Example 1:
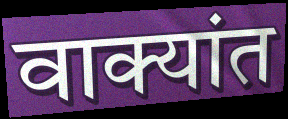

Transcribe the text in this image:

वाक्यांत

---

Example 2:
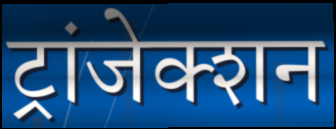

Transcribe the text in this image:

ट्रांजेक्शन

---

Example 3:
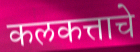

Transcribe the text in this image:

कलकत्ताचे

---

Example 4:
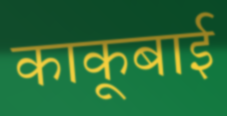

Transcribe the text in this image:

काकूबाई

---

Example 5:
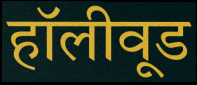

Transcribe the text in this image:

हॉलीवूड